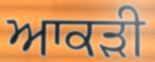
ਆਕੜੀ